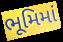
ભૂમિમાં